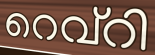
റെവ്റി